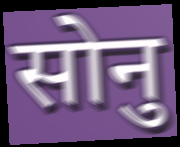
सोनु